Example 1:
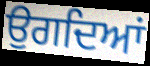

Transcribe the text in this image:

ਉਗਦਿਆਂ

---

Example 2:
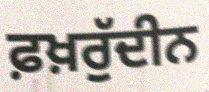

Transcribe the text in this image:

ਫ਼ਖ਼ਰੁੱਦੀਨ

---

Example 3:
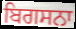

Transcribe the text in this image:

ਬਿਗਸਨਾ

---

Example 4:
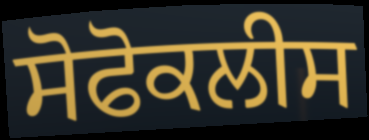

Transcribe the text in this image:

ਸੋਫੋਕਲੀਸ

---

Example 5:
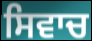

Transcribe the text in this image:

ਸਿਵਾਚ